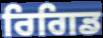
ਰਿਗਿਡ